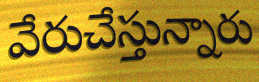
వేరుచేస్తున్నారు